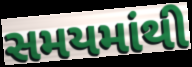
સમયમાંથી